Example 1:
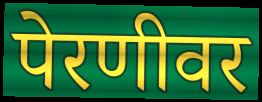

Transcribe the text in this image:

पेरणीवर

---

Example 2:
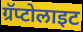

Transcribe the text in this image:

ग्रॅप्टोलाइट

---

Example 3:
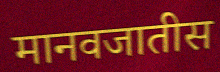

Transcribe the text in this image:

मानवजातीस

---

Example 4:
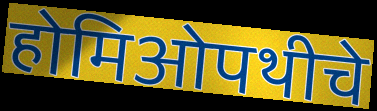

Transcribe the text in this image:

होमिओपथीचे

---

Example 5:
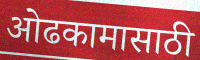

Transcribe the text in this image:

ओढकामासाठी